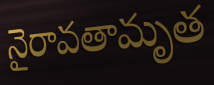
నైరావతామృత